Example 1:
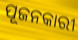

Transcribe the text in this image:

ପୂଜନକାରୀ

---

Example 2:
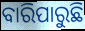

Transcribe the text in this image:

ବାରିପାରୁଛି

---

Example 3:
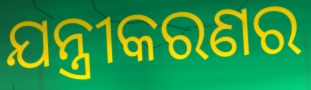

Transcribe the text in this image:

ଯନ୍ତ୍ରୀକରଣର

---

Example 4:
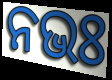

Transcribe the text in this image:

ନଭଃ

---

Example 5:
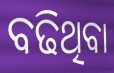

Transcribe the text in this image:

ବଢିଥିବା